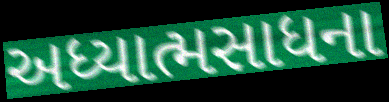
અધ્યાત્મસાધના